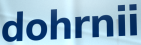
dohrnii